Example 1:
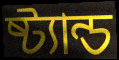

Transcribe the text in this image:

ষ্ট্যান্ড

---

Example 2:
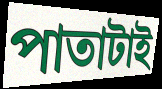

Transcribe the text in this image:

পাতাটাই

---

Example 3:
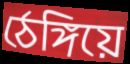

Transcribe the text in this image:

ঠেঙ্গিয়ে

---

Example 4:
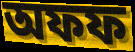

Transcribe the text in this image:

অফফ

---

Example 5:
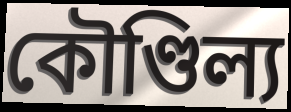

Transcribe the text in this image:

কৌণ্ডিল্য